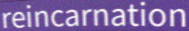
reincarnation